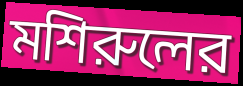
মশিরুলের